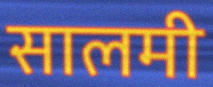
सालमी